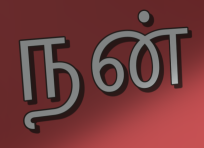
நன்